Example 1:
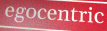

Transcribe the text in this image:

egocentric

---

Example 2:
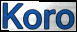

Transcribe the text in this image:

Koro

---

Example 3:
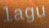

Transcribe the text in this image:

lagu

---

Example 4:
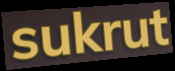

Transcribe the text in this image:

sukrut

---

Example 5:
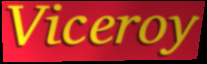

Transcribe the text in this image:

Viceroy